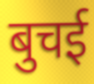
बुचई